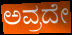
ಅವ್ರದೇ